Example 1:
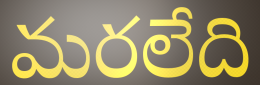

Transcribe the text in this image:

మరలేది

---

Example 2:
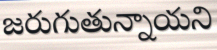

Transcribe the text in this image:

జరుగుతున్నాయని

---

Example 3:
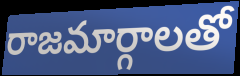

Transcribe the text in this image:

రాజమార్గాలతో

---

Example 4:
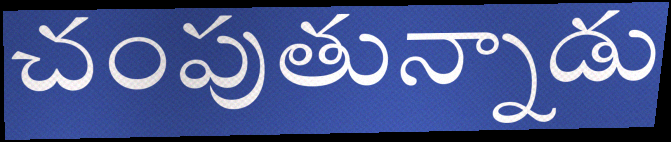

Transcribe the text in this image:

చంపుతున్నాడు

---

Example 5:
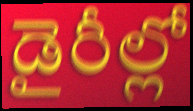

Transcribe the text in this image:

డైరీల్లో